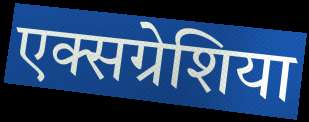
एक्सग्रेशिया